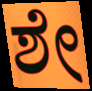
ಶೇ